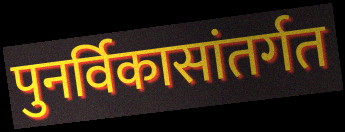
पुनर्विकासांतर्गत